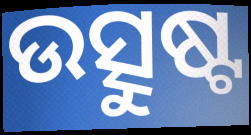
ଉତ୍ସୁଷ୍ଟ